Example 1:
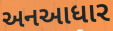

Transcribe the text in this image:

અનઆધાર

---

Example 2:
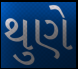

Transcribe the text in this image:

થુણે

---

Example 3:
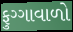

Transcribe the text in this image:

ફુગ્ગાવાળો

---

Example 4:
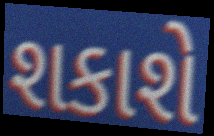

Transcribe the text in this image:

શકાશે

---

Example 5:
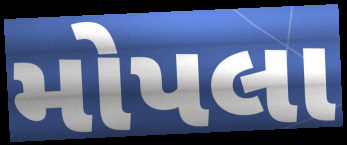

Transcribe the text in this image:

મોપલા